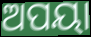
ଅପୟା